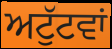
ਅਟੁੱਟਵਾਂ